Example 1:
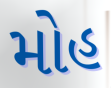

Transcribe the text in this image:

મોહ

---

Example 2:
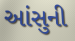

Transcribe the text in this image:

આંસુની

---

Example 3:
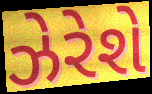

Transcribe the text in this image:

ઝેરેશે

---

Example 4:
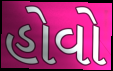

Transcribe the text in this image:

હોવો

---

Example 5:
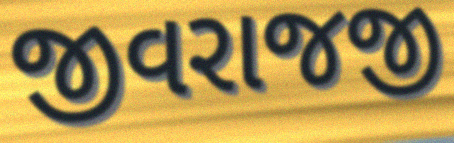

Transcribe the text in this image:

જીવરાજજી